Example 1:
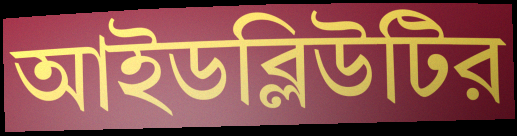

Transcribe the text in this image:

আইডব্লিউটির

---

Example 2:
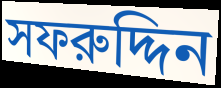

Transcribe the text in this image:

সফরুদ্দিন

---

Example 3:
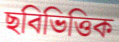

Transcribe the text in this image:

ছবিভিত্তিক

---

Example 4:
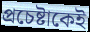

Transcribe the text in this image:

প্রচেষ্টাকেই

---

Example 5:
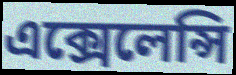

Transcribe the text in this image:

এক্সেলেন্সি